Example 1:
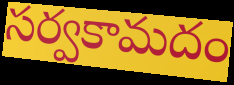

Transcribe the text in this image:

సర్వకామదం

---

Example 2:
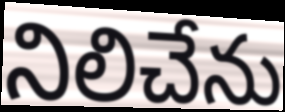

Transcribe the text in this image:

నిలిచేను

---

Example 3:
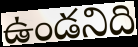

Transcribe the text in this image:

ఉండనిది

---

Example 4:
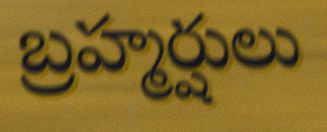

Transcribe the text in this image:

బ్రహ్మర్షులు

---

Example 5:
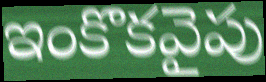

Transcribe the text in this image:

ఇంకొకవైపు